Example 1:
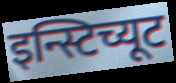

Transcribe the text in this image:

इन्स्टिच्यूट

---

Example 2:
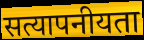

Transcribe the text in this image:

सत्यापनीयता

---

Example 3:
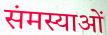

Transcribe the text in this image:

संमस्याओं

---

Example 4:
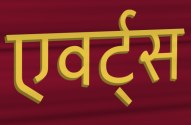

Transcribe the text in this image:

एवर्ट्स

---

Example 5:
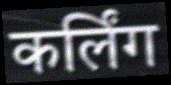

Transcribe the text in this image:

कर्लिंग